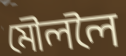
মৌললৈ